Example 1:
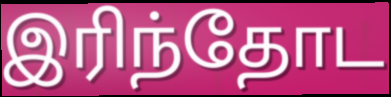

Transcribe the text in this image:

இரிந்தோட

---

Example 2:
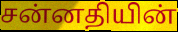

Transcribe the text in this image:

சன்னதியின்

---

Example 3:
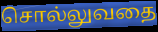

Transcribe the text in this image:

சொல்லுவதை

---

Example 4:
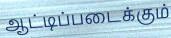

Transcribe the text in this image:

ஆட்டிப்படைக்கும்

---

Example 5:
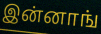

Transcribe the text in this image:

இன்னாங்